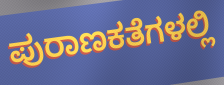
ಪುರಾಣಕತೆಗಳಲ್ಲಿ